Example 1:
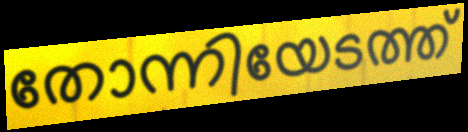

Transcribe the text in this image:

തോന്നിയേടത്ത്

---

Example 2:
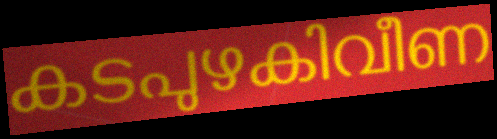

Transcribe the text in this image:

കടപുഴകിവീണ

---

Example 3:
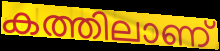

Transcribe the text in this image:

കത്തിലാണ്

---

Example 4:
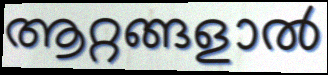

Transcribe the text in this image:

ആറ്റങ്ങളാൽ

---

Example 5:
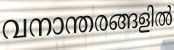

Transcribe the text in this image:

വനാന്തരങ്ങളിൽ